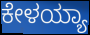
ಕೇಳಯ್ಯಾ